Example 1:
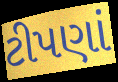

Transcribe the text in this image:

ટીપણાં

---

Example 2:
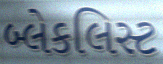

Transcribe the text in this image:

બ્લેકલિસ્ટ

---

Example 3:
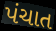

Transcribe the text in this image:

પંચાત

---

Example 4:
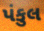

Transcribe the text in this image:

પંકુલ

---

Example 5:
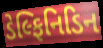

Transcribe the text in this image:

ડેલ્ફિનિડિન